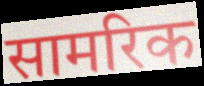
सामरिक